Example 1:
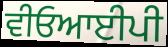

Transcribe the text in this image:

ਵੀਓਆਈਪੀ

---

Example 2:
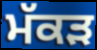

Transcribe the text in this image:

ਮੱਕੜ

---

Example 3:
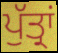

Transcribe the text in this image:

ਪੁੱਤ੍ਰਾਂ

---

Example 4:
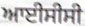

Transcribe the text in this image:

ਆਈਸੀਸੀ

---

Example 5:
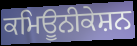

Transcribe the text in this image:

ਕਮਿਊਨੀਕੇਸ਼ਨ